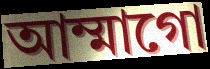
আম্মাগো